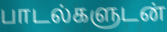
பாடல்களுடன்